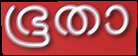
ഭൂതാ